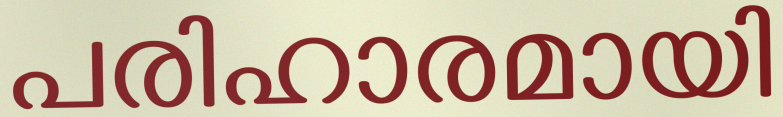
പരിഹാരമായി